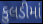
કુલડીમાં